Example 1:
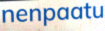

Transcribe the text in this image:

nenpaatu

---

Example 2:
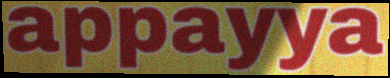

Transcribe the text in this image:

appayya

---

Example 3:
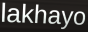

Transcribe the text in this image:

lakhayo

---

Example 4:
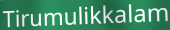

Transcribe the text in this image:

Tirumulikkalam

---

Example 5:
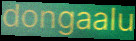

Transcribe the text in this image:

dongaalu